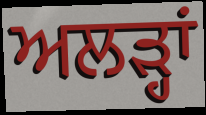
ਅਲੜ੍ਹਾਂ